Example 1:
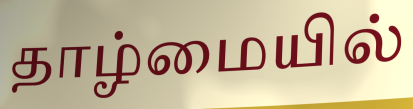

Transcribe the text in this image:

தாழ்மையில்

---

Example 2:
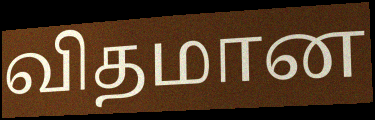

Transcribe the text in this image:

விதமான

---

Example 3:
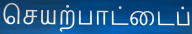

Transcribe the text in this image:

செயற்பாட்டைப்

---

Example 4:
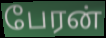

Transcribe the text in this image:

பேரன்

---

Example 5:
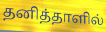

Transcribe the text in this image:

தனித்தாளில்